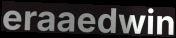
eraaedwin